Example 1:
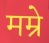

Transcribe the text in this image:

मम्रे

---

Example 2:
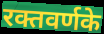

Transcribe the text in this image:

रक्तवर्णके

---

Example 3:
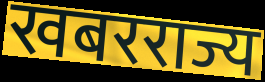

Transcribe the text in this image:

खबरराज्य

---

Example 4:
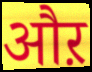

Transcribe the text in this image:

औऱ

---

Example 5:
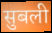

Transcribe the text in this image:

सुबली